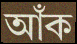
আঁক